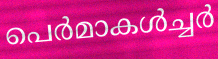
പെർമാകൾച്ചർ